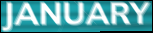
JANUARY